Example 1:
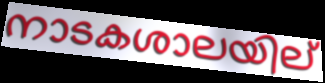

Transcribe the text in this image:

നാടകശാലയില്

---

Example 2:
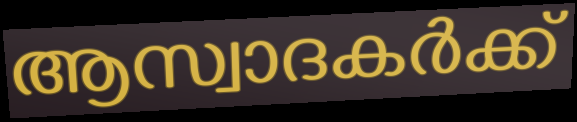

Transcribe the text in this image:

ആസ്വാദകർക്ക്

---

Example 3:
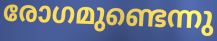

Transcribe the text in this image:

രോഗമുണ്ടെന്നു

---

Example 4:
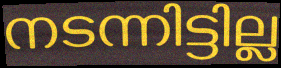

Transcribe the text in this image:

നടന്നിട്ടില്ല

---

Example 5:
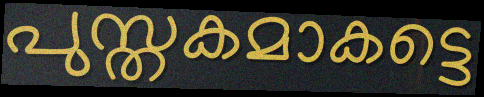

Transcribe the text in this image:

പുസ്തകമാകട്ടെ